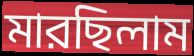
মারছিলাম